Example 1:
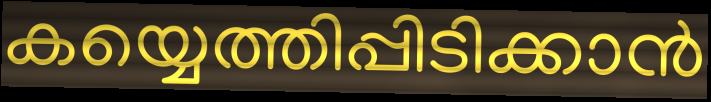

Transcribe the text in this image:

കയ്യെത്തിപ്പിടിക്കാൻ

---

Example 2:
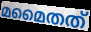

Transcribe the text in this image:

മമൈതത്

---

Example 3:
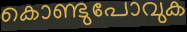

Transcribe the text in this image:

കൊണ്ടുപോവുക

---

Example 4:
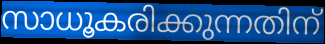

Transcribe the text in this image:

സാധൂകരിക്കുന്നതിന്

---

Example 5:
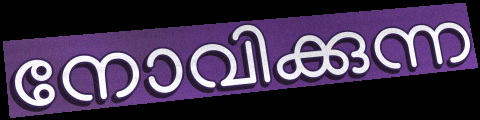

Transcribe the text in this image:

നോവിക്കുന്ന